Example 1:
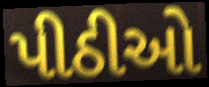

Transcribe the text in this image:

પીઠીઓ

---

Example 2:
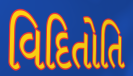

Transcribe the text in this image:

વિદિતોતિ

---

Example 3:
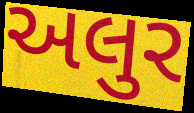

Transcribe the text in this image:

અલુર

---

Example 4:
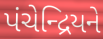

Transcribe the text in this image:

પંચેન્દ્રિયને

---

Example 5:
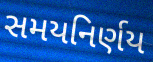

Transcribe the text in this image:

સમયનિર્ણય